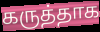
கருத்தாக